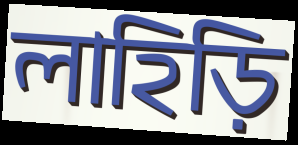
লাহিড়ি